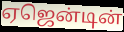
ஏஜென்டின்